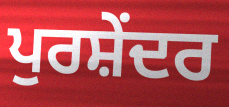
ਪੁਰਸ਼ੇਂਦਰ